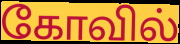
கோவில்